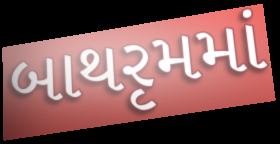
બાથરૃમમાં